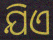
ଯିଏ